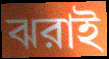
ঝরাই